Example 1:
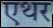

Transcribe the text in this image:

एथर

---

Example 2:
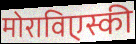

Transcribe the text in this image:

मोराविएस्की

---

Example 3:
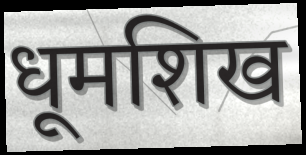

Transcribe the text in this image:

धूमशिख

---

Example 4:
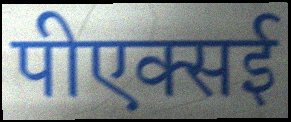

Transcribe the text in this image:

पीएक्सई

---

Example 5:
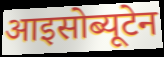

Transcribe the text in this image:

आइसोब्यूटेन